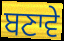
ਬਣਾਵੇ